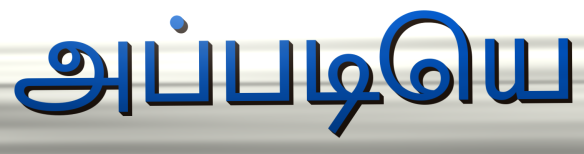
அப்படியெ